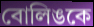
বোলিঙকে